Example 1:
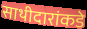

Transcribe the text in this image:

साथीदारांकडे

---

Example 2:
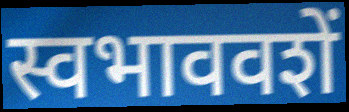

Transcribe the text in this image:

स्वभाववशें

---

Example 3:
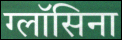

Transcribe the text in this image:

ग्लॉसिना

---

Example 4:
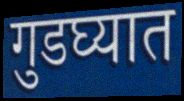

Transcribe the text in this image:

गुडघ्यात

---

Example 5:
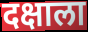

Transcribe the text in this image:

दक्षाला